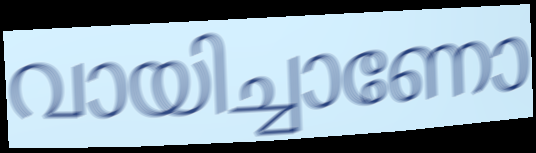
വായിച്ചാണോ